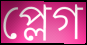
প্লেগ